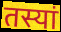
तस्यां